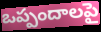
ఒప్పందాలపై